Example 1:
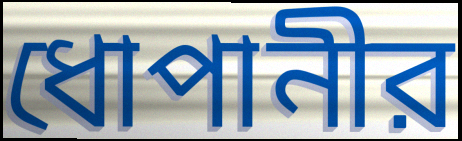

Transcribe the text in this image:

ধোপানীর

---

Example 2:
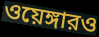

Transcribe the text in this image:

ওয়েঙ্গারও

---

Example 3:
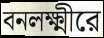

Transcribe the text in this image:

বনলক্ষ্মীরে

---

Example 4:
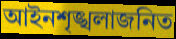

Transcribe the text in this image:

আইনশৃঙ্খলাজনিত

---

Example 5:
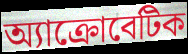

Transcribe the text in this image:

অ্যাক্রোবেটিক